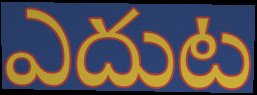
ఎదుట